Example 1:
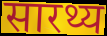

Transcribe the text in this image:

सारथ्य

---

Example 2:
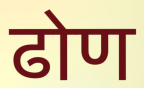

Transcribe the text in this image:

ढोण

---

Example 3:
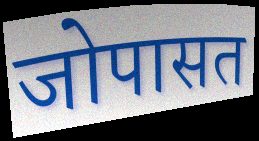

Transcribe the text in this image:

जोपासत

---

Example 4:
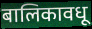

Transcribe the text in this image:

बालिकावधू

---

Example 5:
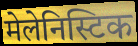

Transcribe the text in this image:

मेलेनिस्टिक